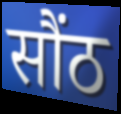
सौंठ